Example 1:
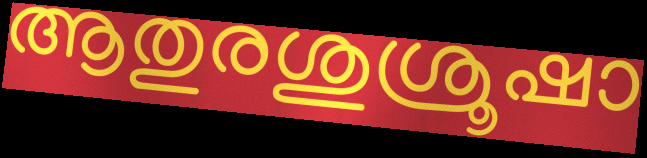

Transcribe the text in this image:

ആതുരശുശ്രൂഷാ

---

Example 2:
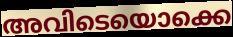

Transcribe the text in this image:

അവിടെയൊക്കെ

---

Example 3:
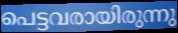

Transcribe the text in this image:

പെട്ടവരായിരുന്നു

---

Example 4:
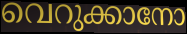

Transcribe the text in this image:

വെറുക്കാനോ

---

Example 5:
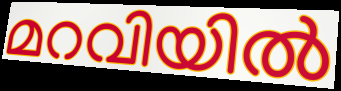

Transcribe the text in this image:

മറവിയിൽ